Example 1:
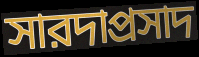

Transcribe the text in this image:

সারদাপ্রসাদ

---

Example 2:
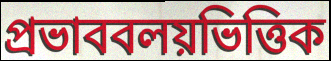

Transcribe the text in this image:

প্রভাববলয়ভিত্তিক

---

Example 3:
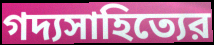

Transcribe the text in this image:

গদ্যসাহিত্যের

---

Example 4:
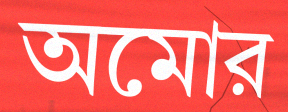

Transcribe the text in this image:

অমোর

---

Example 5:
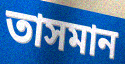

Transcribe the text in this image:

তাসমান